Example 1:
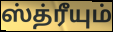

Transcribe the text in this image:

ஸ்த்ரீயும்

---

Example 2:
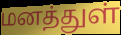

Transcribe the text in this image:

மனத்துள்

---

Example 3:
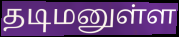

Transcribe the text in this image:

தடிமனுள்ள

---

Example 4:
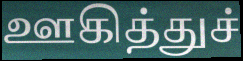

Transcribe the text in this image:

ஊகித்துச்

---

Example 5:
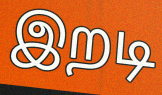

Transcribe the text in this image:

இறடி